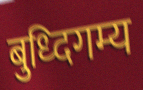
बुध्दिगम्य